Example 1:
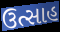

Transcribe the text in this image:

ઉત્સાહ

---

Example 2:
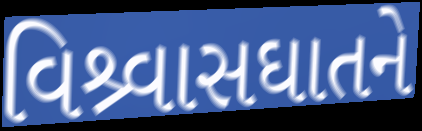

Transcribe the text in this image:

વિશ્ર્વાસઘાતને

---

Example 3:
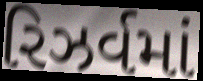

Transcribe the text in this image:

રિઝર્વમાં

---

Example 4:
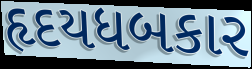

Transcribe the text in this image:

હૃદયધબકાર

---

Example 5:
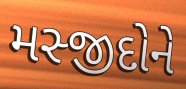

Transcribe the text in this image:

મસ્જીદોને